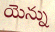
యెన్ను